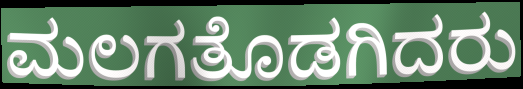
ಮಲಗತೊಡಗಿದರು